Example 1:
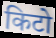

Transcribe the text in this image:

किटो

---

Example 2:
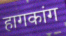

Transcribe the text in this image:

हागकांग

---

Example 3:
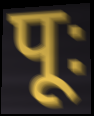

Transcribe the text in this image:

पूः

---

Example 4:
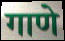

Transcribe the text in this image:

गाणे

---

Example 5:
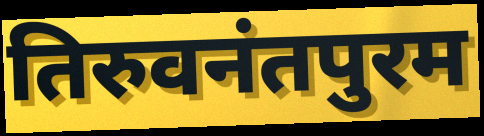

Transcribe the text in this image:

तिरुवनंतपुरम